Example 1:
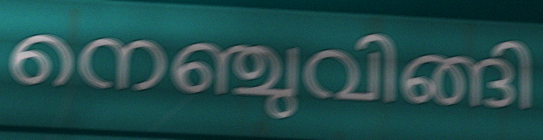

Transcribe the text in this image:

നെഞ്ചുവിങ്ങി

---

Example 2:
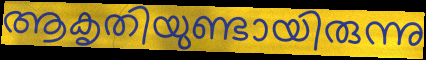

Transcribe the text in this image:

ആകൃതിയുണ്ടായിരുന്നു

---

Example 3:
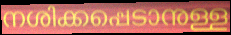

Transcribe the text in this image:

നശിക്കപ്പെടാനുള്ള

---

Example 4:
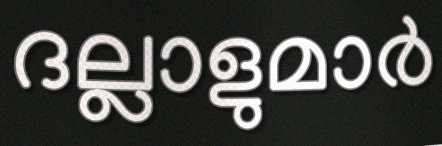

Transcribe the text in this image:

ദല്ലാളുമാർ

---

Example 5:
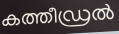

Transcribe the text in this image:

കത്തീഡ്രൽ